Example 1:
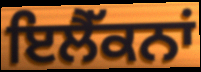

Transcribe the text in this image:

ਇਲੈੱਕਨਾਂ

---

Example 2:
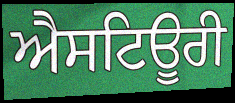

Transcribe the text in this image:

ਐਸਟਿਊਰੀ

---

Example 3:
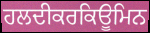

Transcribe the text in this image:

ਹਲਦੀਕਰਕਿਊਮਿਨ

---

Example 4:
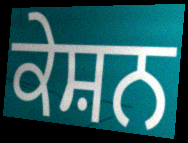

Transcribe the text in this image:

ਕੇਸ਼ਨ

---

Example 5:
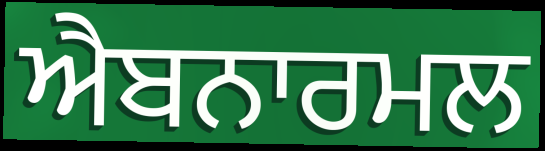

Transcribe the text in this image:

ਐਬਨਾਰਮਲ